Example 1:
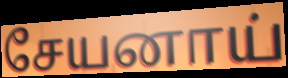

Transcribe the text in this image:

சேயனாய்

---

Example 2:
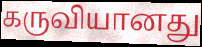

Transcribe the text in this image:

கருவியானது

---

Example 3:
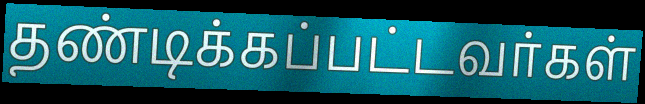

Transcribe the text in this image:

தண்டிக்கப்பட்டவர்கள்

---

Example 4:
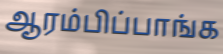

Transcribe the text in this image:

ஆரம்பிப்பாங்க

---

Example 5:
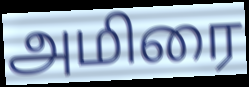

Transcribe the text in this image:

அமிரை